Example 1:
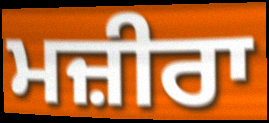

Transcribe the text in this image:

ਮਜ਼ੀਰਾ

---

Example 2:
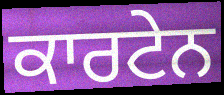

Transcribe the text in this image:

ਕਾਰਟੇਨ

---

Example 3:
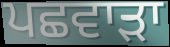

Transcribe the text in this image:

ਪਛਵਾੜਾ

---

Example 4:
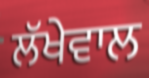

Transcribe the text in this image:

ਲੱਖੇਵਾਲ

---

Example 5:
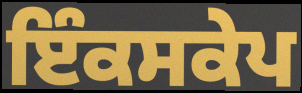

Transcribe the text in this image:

ਇੰਕਸਕੇਪ